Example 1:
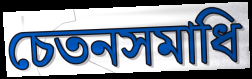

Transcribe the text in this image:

চেতনসমাধি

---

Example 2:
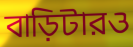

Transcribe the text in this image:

বাড়িটারও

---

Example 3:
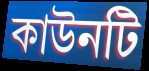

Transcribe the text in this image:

কাউনটি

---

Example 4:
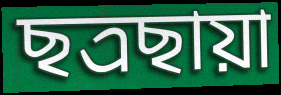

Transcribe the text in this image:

ছত্রছায়া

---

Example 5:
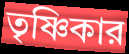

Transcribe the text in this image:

তৃষ্ণিকার